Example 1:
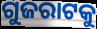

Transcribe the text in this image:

ଗୁଜରାଟକୁ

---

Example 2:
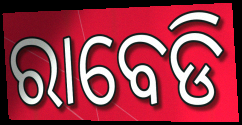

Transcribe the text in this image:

ରାବେଡି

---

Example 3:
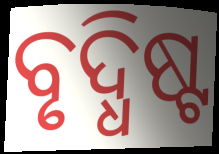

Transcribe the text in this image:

ବୃଦ୍ଧିଷ୍ଟ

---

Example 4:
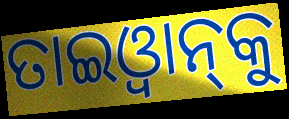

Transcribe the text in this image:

ତାଇଓ୍ବାନ୍‌କୁ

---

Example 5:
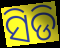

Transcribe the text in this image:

ସିଡି